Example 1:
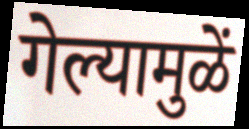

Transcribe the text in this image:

गेल्यामुळें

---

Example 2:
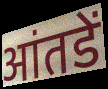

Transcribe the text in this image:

आंतडें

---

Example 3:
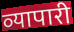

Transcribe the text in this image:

व्‍यापारी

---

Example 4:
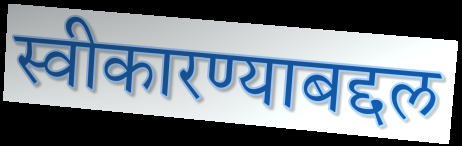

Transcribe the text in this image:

स्वीकारण्याबद्दल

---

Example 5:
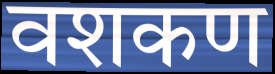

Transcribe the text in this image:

वशकण